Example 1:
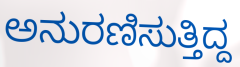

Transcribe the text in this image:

ಅನುರಣಿಸುತ್ತಿದ್ದ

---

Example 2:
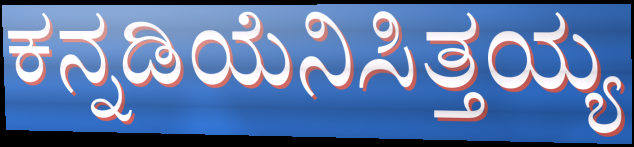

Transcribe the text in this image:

ಕನ್ನಡಿಯೆನಿಸಿತ್ತಯ್ಯ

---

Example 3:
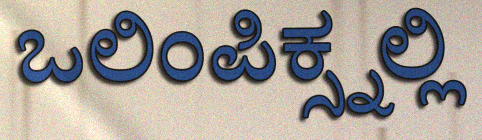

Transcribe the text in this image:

ಒಲಿಂಪಿಕ್ಸ್ನಲ್ಲಿ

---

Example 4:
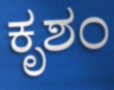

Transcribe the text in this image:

ಕೃಶಂ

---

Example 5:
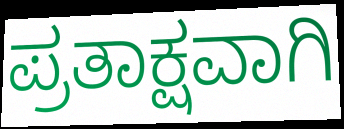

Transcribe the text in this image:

ಪ್ರತಾಕ್ಷವಾಗಿ